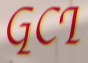
GCI